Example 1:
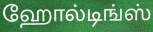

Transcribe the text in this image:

ஹோல்டிங்ஸ்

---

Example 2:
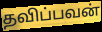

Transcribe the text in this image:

தவிப்பவன்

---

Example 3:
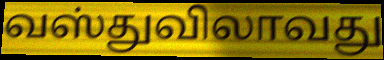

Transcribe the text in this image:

வஸ்துவிலாவது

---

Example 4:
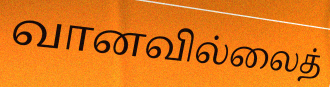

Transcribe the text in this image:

வானவில்லைத்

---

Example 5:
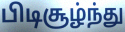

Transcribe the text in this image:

பிடிசூழ்ந்து